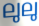
ലുലു